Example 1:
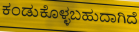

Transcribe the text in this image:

ಕಂಡುಕೊಳ್ಳಬಹುದಾಗಿದೆ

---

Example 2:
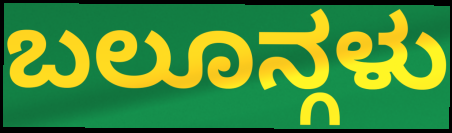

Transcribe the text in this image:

ಬಲೂನ್ಗಳು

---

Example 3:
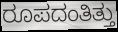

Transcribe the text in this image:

ರೂಪದಂತಿತ್ತು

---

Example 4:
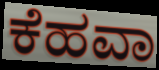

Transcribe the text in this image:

ಕೆಹವಾ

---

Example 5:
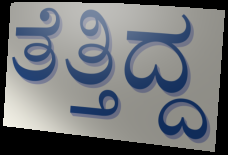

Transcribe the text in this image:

ತೆತ್ತಿದ್ದ